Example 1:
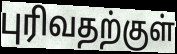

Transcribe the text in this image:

புரிவதற்குள்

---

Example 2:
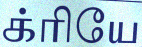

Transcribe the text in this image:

க்ரியே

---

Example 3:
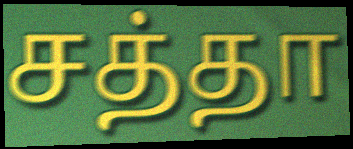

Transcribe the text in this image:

சத்தா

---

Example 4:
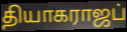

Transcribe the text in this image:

தியாகராஜப்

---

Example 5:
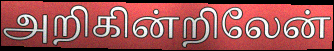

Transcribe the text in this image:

அறிகின்றிலேன்